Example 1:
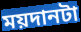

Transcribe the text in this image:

ময়দানটা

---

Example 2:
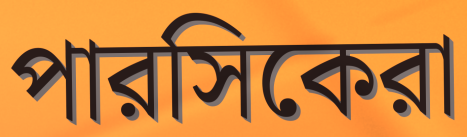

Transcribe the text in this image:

পারসিকেরা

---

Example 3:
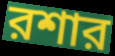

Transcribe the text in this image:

রশার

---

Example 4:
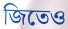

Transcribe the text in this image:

জিতেও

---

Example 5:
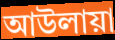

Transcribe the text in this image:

আউলায়া